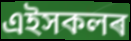
এইসকলৰ